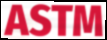
ASTM